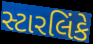
સ્ટારલિંકે